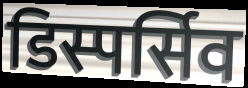
डिस्पर्सिव